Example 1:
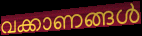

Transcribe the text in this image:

വക്കാണങ്ങൾ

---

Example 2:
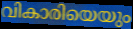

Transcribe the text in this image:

വികാരിയെയും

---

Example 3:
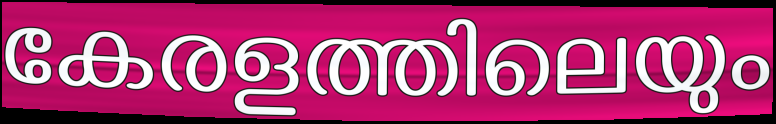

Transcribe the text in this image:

കേരളത്തിലെയും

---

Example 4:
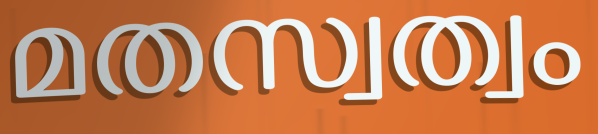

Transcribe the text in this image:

മതസ്വത്വം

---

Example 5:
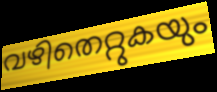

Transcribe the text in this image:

വഴിതെറ്റുകയും